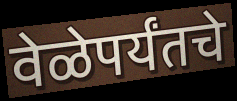
वेळेपर्यंतचे